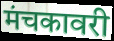
मंचकावरी